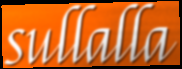
sullalla